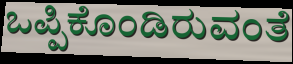
ಒಪ್ಪಿಕೊಂಡಿರುವಂತೆ